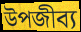
উপজীব্য